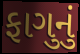
ફાગુનું